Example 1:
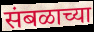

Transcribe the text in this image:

संबळाच्या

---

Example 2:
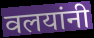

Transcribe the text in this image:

वलयांनी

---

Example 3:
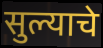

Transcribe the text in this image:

सुल्याचे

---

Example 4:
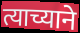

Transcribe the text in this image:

त्याच्याने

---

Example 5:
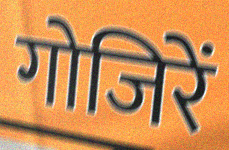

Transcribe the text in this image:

गोजिरें